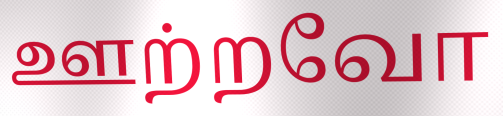
ஊற்றவோ